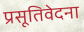
प्रसूतिवेदना